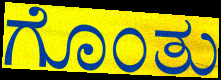
ಗೊಂತು